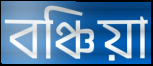
বঞ্চিয়া